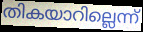
തികയാറില്ലെന്ന്